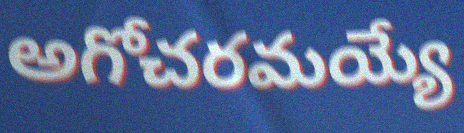
అగోచరమయ్యే